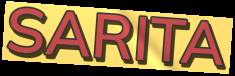
SARITA